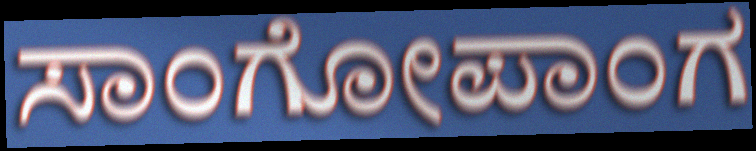
ಸಾಂಗೋಪಾಂಗ